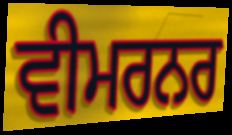
ਵੀਮਰਨਰ